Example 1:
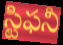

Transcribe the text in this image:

స్టిఫనీ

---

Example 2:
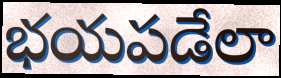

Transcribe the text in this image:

భయపడేలా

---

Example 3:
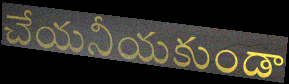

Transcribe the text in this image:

చేయనీయకుండా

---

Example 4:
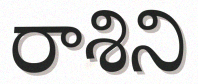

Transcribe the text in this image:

రాశిని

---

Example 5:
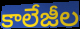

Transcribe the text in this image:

కాలేజీల